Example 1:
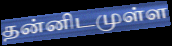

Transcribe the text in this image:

தன்னிடமுள்ள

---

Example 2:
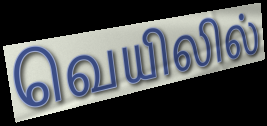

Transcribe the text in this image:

வெயிலில்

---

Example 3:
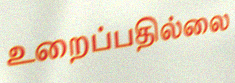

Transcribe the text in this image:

உறைப்பதில்லை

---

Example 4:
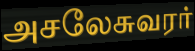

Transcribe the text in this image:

அசலேசுவரர்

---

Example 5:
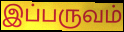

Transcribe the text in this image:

இப்பருவம்